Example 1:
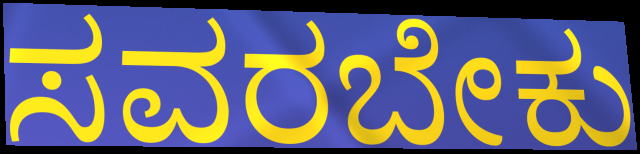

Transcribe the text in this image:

ಸವರಬೇಕು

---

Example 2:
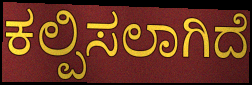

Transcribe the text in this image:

ಕಲ್ಪಿಸಲಾಗಿದೆ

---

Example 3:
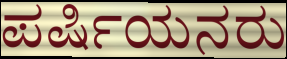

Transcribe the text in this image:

ಪರ್ಷಿಯನರು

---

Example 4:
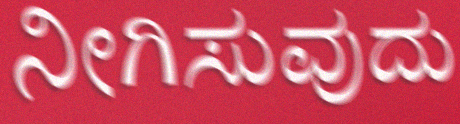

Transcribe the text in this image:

ನೀಗಿಸುವುದು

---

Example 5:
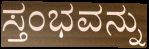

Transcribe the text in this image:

ಸ್ತಂಭವನ್ನು